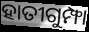
ହାତୀଗୁମ୍ଫା